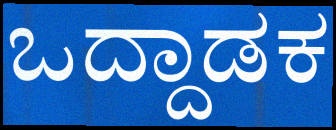
ಒದ್ದಾಡಕ